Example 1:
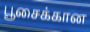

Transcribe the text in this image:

பூசைக்கான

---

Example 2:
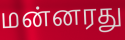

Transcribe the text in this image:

மன்னரது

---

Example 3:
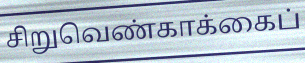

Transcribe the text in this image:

சிறுவெண்காக்கைப்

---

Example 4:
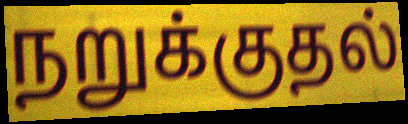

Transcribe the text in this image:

நறுக்குதல்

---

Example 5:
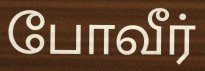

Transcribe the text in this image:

போவீர்